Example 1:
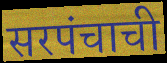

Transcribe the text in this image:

सरपंचाची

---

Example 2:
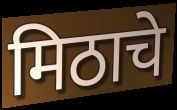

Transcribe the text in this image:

मिठाचे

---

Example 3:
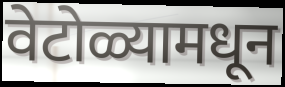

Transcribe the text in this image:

वेटोळ्यामधून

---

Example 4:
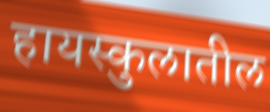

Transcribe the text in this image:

हायस्कुलातील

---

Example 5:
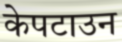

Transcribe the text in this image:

केपटाउन